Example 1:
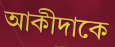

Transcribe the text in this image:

আকীদাকে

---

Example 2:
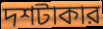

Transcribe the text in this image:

দশটাকার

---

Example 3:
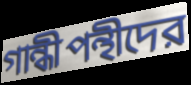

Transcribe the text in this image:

গান্ধীপন্থীদের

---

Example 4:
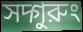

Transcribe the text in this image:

সদ্গুরুং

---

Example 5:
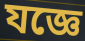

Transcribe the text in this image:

যজ্ঞে